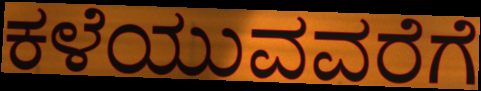
ಕಳೆಯುವವರೆಗೆ